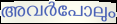
അവർപോലും